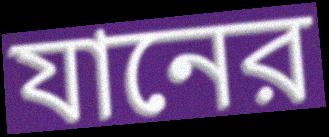
যানের